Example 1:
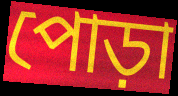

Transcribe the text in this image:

পোড়া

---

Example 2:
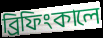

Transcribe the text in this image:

ব্রিফিংকালে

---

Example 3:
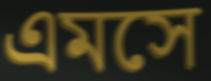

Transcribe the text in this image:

এমসে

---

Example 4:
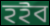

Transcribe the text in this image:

হইব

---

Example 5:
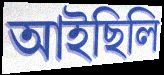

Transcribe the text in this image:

আইছিলি